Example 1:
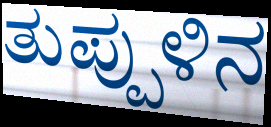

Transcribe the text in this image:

ತುಪ್ಪುಳಿನ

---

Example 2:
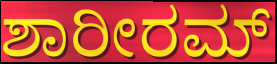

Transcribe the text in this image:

ಶಾರೀರಮ್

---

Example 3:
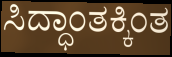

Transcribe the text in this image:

ಸಿದ್ಧಾಂತಕ್ಕಿಂತ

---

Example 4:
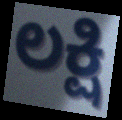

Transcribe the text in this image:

ಲಕ್ಷಿ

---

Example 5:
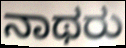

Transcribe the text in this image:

ನಾಥರು